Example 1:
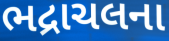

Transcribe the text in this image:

ભદ્રાચલના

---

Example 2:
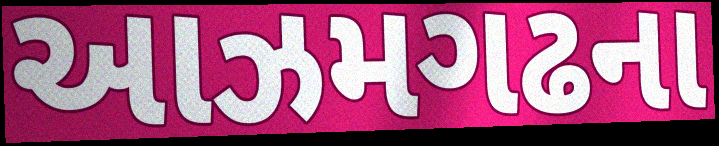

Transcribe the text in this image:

આઝમગઢના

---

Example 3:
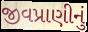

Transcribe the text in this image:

જીવપ્રાણીનું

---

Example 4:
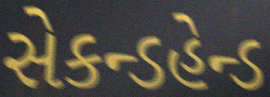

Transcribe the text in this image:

સેકન્ડહેન્ડ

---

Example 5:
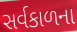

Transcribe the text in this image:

સર્વકાળના